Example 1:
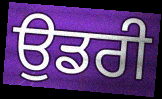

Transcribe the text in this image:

ਉਡਰੀ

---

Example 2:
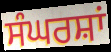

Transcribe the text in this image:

ਸੰਘਰਸ਼ਾਂ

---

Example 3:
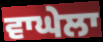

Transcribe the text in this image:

ਵਾਘੇਲਾ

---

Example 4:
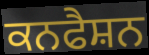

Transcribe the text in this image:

ਕਨਫੈਸ਼ਨ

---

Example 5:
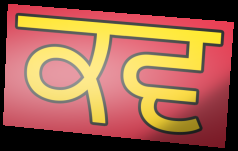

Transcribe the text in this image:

ਕਵ